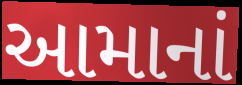
આમાનાં